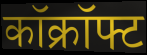
कॉक्रॉफ्ट